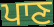
ਪਾਣ